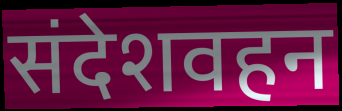
संदेशवहन